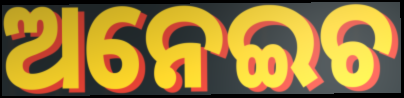
ଅନେଇଚ